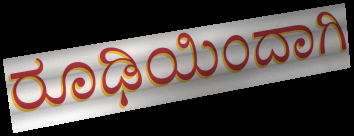
ರೂಢಿಯಿಂದಾಗಿ